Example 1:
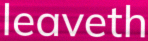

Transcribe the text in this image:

leaveth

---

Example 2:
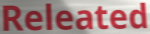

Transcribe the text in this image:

Releated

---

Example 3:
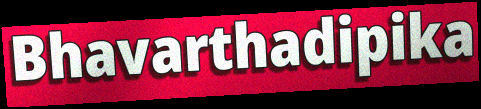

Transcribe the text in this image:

Bhavarthadipika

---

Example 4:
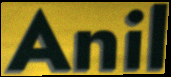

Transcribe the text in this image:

Anil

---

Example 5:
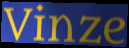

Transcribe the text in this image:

Vinze